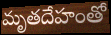
మృతదేహంతో